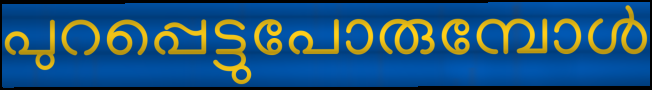
പുറപ്പെട്ടുപോരുമ്പോൾ